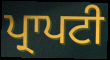
ਪ੍ਰਾਪਟੀ